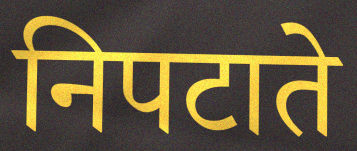
निपटाते